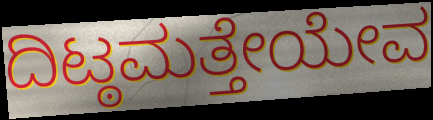
ದಿಟ್ಠಮತ್ತೇಯೇವ